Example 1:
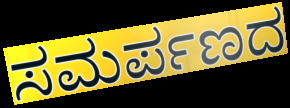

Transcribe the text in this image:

ಸಮರ್ಪಣದ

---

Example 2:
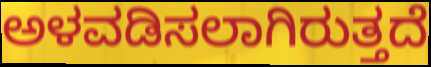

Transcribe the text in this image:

ಅಳವಡಿಸಲಾಗಿರುತ್ತದೆ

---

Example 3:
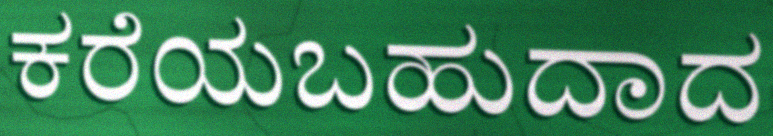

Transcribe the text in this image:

ಕರೆಯಬಹುದಾದ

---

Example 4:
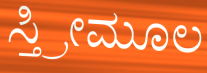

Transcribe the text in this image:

ಸ್ತ್ರೀಮೂಲ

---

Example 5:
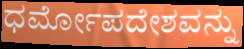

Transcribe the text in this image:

ಧರ್ಮೋಪದೇಶವನ್ನು